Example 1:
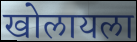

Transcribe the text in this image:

खोलायला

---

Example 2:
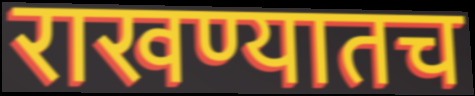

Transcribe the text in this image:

राखण्यातच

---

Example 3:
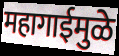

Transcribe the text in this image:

महागाईमुळे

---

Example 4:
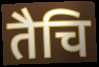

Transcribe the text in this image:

तैचि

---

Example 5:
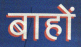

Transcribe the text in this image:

बाहों